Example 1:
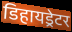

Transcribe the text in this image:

डिहायड्रेटर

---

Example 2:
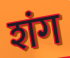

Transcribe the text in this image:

शंग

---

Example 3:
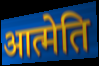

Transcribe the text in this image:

आत्मेति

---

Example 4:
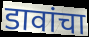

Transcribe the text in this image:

डावांचा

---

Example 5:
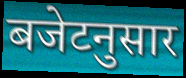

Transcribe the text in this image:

बजेटनुसार